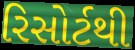
રિસોર્ટથી